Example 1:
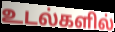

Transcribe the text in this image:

உடல்களில்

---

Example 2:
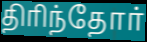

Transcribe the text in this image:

திரிந்தோர்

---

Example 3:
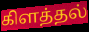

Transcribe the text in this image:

கிளத்தல்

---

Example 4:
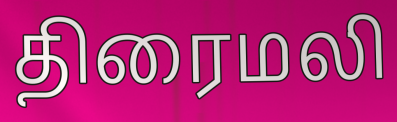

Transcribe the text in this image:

திரைமலி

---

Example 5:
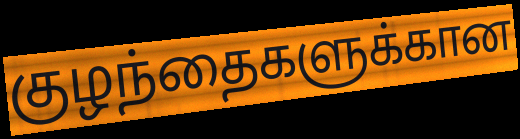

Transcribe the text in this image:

குழந்தைகளுக்கான